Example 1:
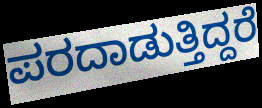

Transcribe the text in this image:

ಪರದಾಡುತ್ತಿದ್ದರೆ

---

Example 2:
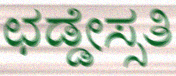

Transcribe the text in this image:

ಛಡ್ಡೇಸ್ಸತಿ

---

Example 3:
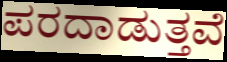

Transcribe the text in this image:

ಪರದಾಡುತ್ತವೆ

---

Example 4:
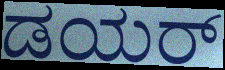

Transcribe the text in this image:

ಡಯರ್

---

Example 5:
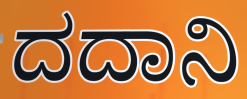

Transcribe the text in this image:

ದದಾನಿ